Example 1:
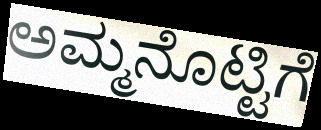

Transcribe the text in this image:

ಅಮ್ಮನೊಟ್ಟಿಗೆ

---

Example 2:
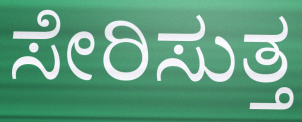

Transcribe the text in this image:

ಸೇರಿಸುತ್ತ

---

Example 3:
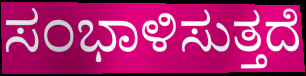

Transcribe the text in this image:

ಸಂಭಾಳಿಸುತ್ತದೆ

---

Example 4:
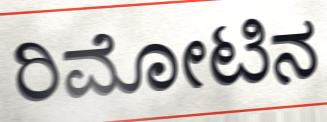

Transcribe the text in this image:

ರಿಮೋಟಿನ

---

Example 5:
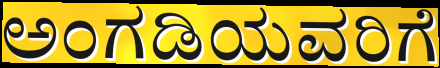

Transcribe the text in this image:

ಅಂಗಡಿಯವರಿಗೆ